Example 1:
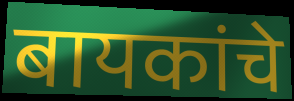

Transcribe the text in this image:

बायकांचे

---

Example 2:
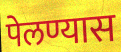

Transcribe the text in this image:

पेलण्यास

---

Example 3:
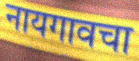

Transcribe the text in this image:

नायगावचा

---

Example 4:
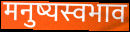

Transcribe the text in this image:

मनुष्यस्वभाव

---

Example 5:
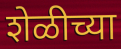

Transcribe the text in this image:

शेळीच्या